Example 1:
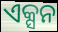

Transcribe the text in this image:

ଏକ୍ସନ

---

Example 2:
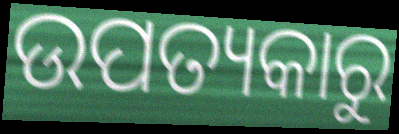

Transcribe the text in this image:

ଉପତ୍ୟକାରୁ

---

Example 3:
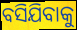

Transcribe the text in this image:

ବସିଯିବାକୁ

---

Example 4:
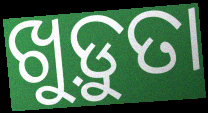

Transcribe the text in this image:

ଖୁଡ଼ୁତା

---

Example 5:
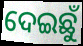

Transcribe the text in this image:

ଦେଇଛୁଁ